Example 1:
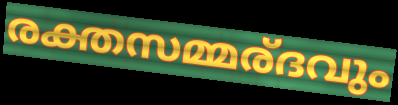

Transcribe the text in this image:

രക്തസമ്മര്ദവും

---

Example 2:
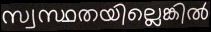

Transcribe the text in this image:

സ്വസ്ഥതയില്ലെങ്കിൽ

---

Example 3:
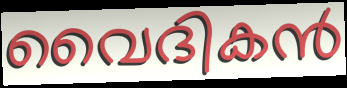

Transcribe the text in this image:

വൈദികൻ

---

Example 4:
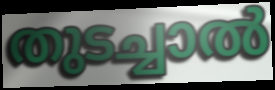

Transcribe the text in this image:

തുടച്ചാൽ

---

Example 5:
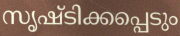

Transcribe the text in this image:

സൃഷ്ടിക്കപ്പെടും